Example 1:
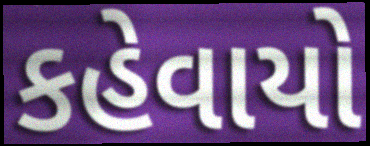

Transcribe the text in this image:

કહેવાયો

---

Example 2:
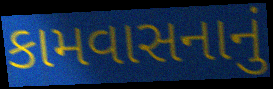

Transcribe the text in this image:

કામવાસનાનું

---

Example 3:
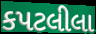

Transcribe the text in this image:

કપટલીલા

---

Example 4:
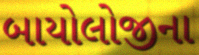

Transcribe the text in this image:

બાયોલોજીના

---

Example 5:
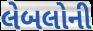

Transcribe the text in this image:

લેબલોની